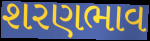
શરણભાવ